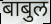
बाबुल